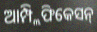
ଆମ୍ପ୍ଲିଫିକେସନ୍